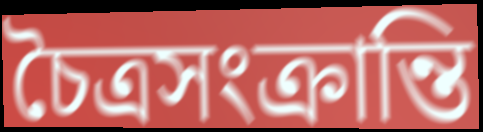
চৈত্রসংক্রান্তি